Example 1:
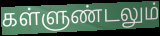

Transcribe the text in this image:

கள்ளுண்டலும்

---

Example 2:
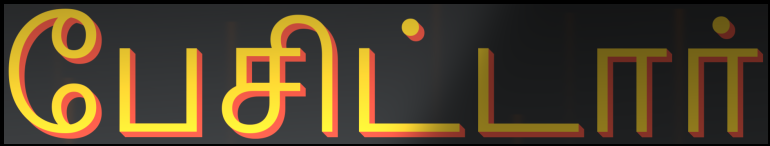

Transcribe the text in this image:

பேசிட்டார்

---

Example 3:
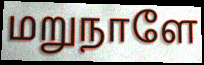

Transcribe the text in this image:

மறுநாளே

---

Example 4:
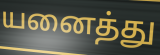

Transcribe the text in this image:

யனைத்து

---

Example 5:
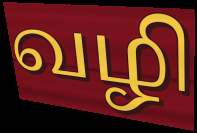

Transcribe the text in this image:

வழி